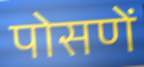
पोसणें